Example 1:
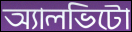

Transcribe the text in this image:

অ্যালভিটো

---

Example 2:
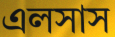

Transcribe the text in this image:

এলসাস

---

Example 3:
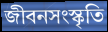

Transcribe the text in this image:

জীবনসংস্কৃতি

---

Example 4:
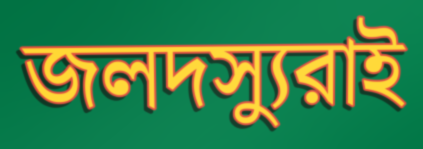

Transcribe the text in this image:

জলদস্যুরাই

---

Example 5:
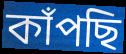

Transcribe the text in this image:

কাঁপছি